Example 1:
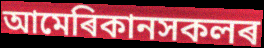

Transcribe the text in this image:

আমেৰিকানসকলৰ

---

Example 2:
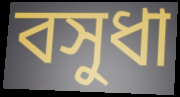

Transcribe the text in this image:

বসুধা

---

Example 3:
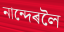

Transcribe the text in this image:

নান্দেৰলৈ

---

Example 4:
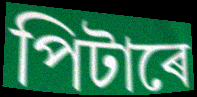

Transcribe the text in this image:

পিটাৰে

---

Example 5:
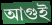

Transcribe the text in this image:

আগুই